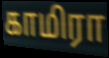
காமிரா